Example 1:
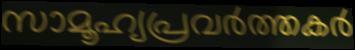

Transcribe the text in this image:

സാമൂഹ്യപ്രവർത്തകർ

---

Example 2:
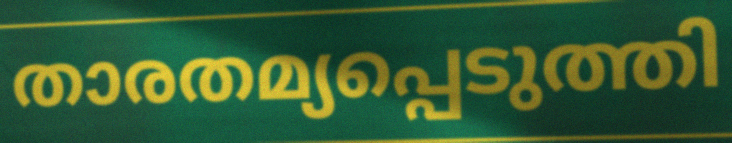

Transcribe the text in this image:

താരതമ്യപ്പെടുത്തി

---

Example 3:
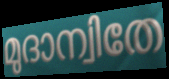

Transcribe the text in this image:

മുദാന്വിതേ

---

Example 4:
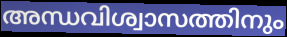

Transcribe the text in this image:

അന്ധവിശ്വാസത്തിനും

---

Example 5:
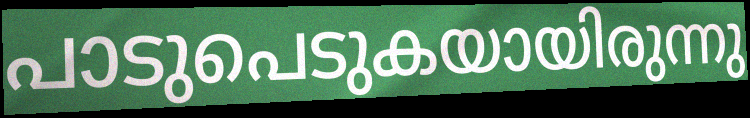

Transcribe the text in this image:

പാടുപെടുകയായിരുന്നു